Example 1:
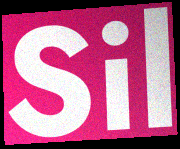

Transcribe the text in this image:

Sil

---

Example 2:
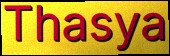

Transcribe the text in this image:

Thasya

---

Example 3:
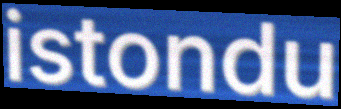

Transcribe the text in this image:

istondu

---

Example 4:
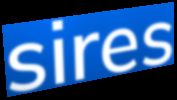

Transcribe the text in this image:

sires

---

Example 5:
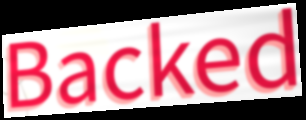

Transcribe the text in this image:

Backed